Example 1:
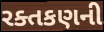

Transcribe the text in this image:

રક્તકણની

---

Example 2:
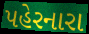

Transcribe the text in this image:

પહેરનારા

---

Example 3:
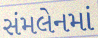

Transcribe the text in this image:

સંમલેનમાં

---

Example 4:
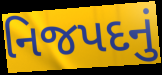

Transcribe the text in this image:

નિજપદનું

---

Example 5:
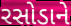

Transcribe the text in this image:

રસોડાને